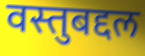
वस्तुबद्दल